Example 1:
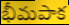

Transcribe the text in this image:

భీమపాక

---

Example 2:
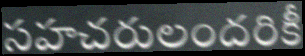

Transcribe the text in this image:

సహచరులందరికీ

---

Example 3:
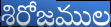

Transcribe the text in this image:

శిరోజముల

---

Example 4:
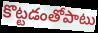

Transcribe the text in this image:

కొట్టడంతోపాటు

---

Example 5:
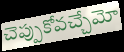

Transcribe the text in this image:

చెప్పుకోవచ్చేమో